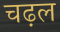
चढ़ल